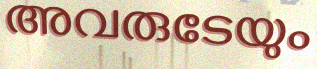
അവരുടേയും